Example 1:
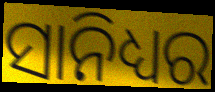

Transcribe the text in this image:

ସାନିଧ୍ୟର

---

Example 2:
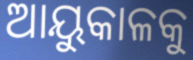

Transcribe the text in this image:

ଆୟୁକାଳକୁ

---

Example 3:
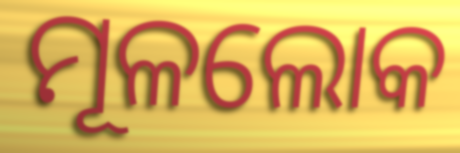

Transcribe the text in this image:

ମୂଳଲୋକ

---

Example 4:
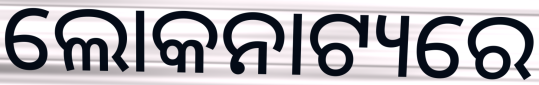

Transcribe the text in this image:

ଲୋକନାଟ୍ୟରେ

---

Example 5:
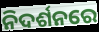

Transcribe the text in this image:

ନିଦର୍ଶନରେ